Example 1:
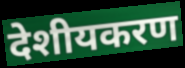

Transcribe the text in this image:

देशीयकरण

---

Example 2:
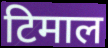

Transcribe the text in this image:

टिमाल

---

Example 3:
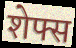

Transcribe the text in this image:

शेफ्स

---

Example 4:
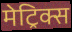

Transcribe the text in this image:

मेट्रिक्स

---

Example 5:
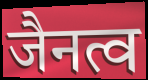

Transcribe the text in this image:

जैनत्व